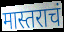
मास्तराचं